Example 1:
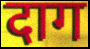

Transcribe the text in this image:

दाग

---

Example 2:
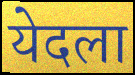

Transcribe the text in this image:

येदला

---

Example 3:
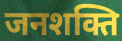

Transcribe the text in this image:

जनशक्ति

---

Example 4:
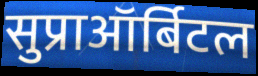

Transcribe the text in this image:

सुप्राऑर्बिटल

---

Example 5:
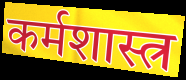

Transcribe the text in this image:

कर्मशास्त्र